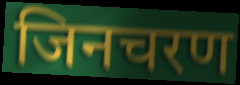
जिनचरण